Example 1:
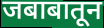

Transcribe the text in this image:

जबाबातून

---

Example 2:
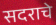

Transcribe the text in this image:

सदराचे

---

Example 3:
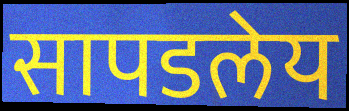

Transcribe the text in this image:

सापडलेय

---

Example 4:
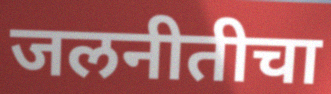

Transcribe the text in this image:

जलनीतीचा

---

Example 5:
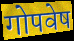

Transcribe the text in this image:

गोपवेष